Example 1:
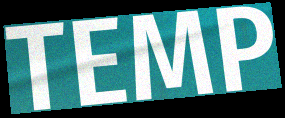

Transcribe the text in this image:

TEMP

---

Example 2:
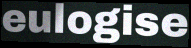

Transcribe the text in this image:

eulogise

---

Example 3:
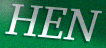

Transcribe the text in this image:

HEN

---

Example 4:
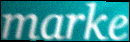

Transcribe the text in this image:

marke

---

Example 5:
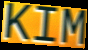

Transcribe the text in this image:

KIM